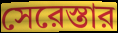
সেরেস্তার